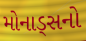
મોનાડ્સનો